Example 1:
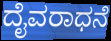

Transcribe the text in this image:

ದೈವರಾಧನೆ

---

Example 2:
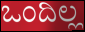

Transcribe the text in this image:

ಒಂದಿಲ್ಲ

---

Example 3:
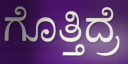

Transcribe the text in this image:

ಗೊತ್ತಿದ್ರೆ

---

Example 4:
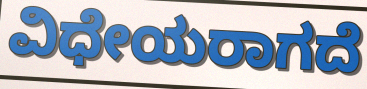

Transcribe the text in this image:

ವಿಧೇಯರಾಗದೆ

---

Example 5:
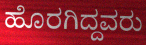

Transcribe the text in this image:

ಹೊರಗಿದ್ದವರು